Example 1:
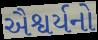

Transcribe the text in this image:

ઐશ્વર્યનો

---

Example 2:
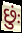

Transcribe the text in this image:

છુંઃ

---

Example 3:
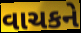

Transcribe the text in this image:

વાચકને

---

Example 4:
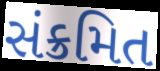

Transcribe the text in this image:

સંક્રમિત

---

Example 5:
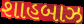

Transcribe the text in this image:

શાહબાઝ